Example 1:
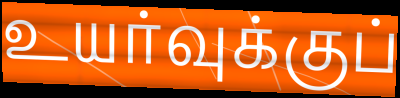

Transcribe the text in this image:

உயர்வுக்குப்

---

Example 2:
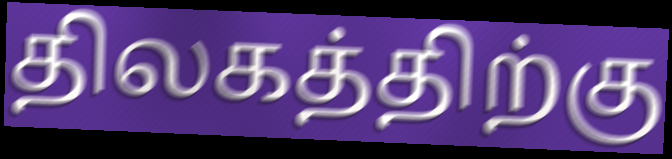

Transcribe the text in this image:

திலகத்திற்கு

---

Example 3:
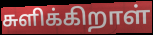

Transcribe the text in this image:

சுளிக்கிறாள்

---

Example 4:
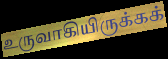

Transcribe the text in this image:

உருவாகியிருக்கக்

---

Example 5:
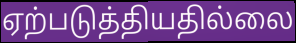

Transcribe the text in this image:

ஏற்படுத்தியதில்லை